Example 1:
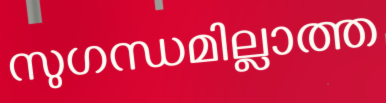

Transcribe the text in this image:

സുഗന്ധമില്ലാത്ത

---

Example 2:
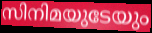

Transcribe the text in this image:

സിനിമയുടേയും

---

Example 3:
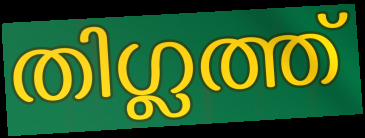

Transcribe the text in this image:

തിഗ്ലത്ത്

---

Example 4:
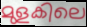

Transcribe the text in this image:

മുളകിലെ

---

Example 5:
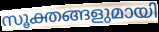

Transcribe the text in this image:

സൂക്തങ്ങളുമായി